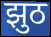
झुठ